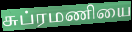
சுப்ரமணியை